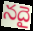
నదై